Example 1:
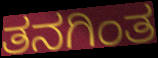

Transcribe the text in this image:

ತನಗಿಂತ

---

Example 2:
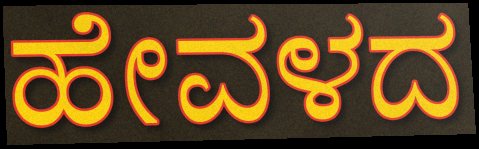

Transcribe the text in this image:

ಹೇವಳದ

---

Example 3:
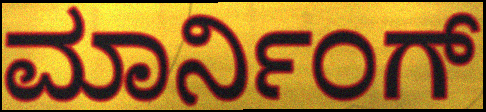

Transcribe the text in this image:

ಮಾರ್ನಿಂಗ್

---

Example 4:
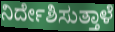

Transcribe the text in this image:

ನಿರ್ದೇಶಿಸುತ್ತಾಳೆ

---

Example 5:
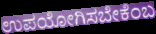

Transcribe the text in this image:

ಉಪಯೋಗಿಸಬೇಕೆಂಬ